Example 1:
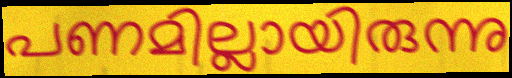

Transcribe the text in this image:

പണമില്ലായിരുന്നു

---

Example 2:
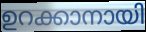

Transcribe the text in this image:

ഉറക്കാനായി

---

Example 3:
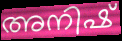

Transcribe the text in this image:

അനിഷ്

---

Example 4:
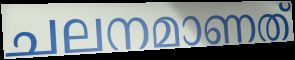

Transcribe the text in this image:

ചലനമാണത്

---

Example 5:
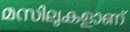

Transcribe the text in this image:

മസിലുകളാണ്